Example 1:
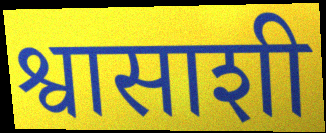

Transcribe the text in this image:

श्वासाशी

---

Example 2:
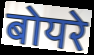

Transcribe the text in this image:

बोयरे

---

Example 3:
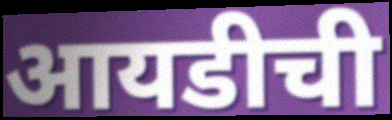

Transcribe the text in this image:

आयडीची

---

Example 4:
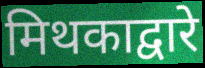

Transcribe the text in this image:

मिथकाद्वारे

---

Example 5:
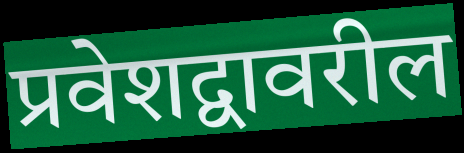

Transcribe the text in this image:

प्रवेशद्वावरील